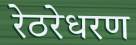
रेठरेधरण